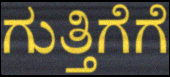
ಗುತ್ತಿಗೆಗೆ